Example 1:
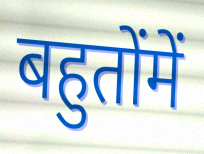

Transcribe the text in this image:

बहुतोंमें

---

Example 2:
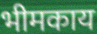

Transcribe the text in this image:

भीमकाय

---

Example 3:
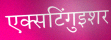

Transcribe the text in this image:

एक्सटिंगुइशर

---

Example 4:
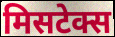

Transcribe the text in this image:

मिसटेक्स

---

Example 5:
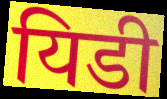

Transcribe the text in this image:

यिडी